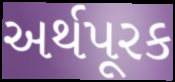
અર્થપૂરક